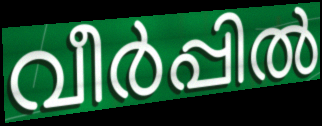
വീർപ്പിൽ